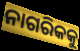
ନାଗରିକକୁ